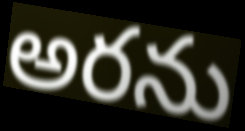
అరను